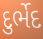
દુર્ભેદ